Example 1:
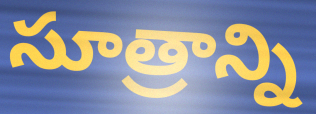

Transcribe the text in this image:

సూత్రాన్ని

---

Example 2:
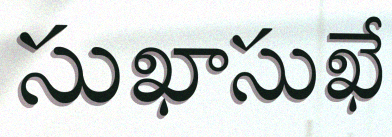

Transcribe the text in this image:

సుఖాసుఖే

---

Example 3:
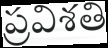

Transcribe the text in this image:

ప్రవిశతి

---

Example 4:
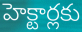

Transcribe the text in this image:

హెక్టార్లకు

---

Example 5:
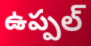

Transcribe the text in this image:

ఉప్పల్